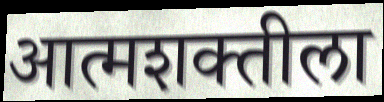
आत्मशक्तीला